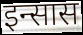
इन्सास